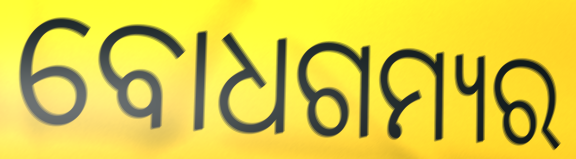
ବୋଧଗମ୍ୟର